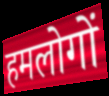
हमलोगों